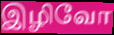
இழிவோ